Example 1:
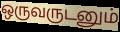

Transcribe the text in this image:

ஒருவருடனும்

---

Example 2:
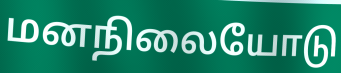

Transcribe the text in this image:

மனநிலையோடு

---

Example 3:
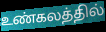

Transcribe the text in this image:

உண்கலத்தில்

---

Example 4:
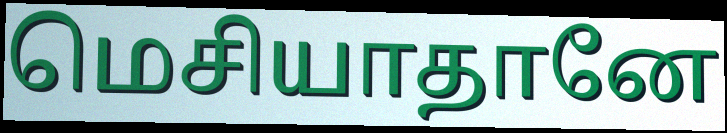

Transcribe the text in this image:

மெசியாதானே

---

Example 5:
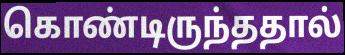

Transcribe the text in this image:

கொண்டிருந்ததால்